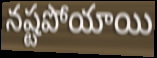
నష్టపోయాయి